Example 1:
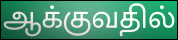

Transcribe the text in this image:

ஆக்குவதில்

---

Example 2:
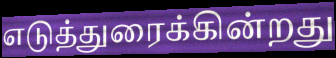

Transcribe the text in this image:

எடுத்துரைக்கின்றது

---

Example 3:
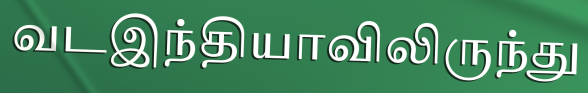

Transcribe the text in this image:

வடஇந்தியாவிலிருந்து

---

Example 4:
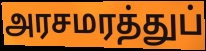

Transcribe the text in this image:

அரசமரத்துப்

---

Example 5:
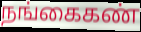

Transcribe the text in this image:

நங்கைகண்